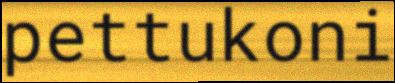
pettukoni